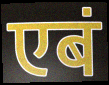
एबं